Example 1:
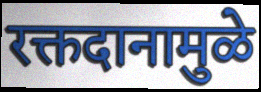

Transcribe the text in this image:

रक्तदानामुळे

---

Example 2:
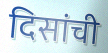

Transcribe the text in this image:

दिसांची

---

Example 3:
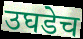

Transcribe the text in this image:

उघडेच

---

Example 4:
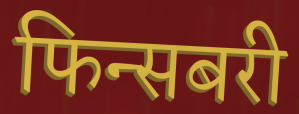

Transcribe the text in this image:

फिन्सबरी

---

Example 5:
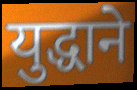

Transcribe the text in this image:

युद्धाने